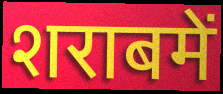
शराबमें